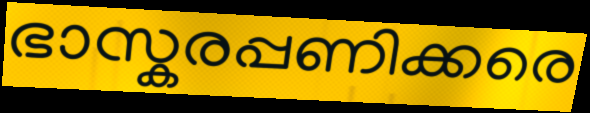
ഭാസ്കരപ്പണിക്കരെ